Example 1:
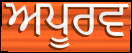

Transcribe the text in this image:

ਅਪੂਰਵ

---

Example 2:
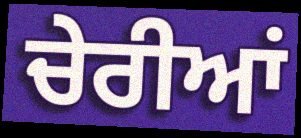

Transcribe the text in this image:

ਚੇਰੀਆਂ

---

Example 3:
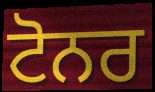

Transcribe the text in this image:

ਟੋਨਰ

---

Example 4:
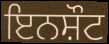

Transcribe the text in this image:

ਇਨਸ਼ੌਟ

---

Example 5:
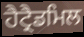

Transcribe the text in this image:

ਹੈਟ੍ਰੈਡਮਿਲ